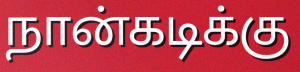
நான்கடிக்கு